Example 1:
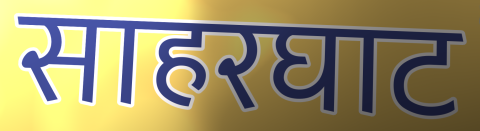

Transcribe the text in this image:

साहरघाट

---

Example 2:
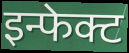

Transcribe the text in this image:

इन्फेक्ट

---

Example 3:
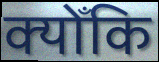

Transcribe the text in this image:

क्योँकि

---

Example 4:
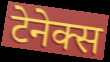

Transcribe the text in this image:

टेनेक्स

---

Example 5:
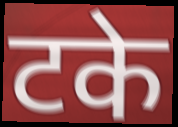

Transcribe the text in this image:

टके